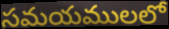
సమయములలో